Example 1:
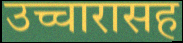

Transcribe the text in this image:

उच्चारासह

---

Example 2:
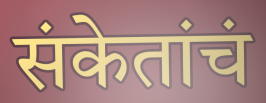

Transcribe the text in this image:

संकेतांचं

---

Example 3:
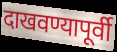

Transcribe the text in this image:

दाखवण्यापूर्वी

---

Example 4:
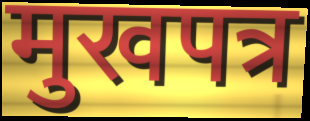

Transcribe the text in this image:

मुखपत्र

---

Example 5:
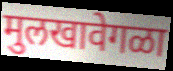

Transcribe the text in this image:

मुलखावेगळा